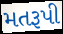
મતરૂપી